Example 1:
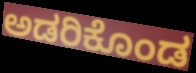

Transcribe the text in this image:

ಅಡರಿಕೊಂಡ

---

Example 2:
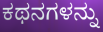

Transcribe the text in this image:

ಕಥನಗಳನ್ನು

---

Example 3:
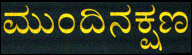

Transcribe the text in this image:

ಮುಂದಿನಕ್ಷಣ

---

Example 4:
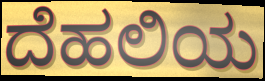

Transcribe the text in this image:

ದೆಹಲಿಯ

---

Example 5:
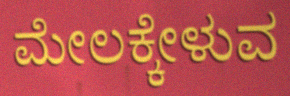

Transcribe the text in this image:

ಮೇಲಕ್ಕೇಳುವ